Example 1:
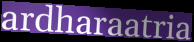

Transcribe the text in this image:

ardharaatria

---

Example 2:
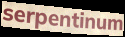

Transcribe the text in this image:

serpentinum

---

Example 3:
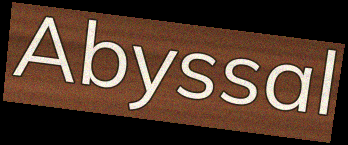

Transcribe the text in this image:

Abyssal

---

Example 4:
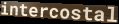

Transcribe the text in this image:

intercostal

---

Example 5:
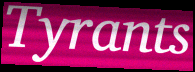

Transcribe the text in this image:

Tyrants